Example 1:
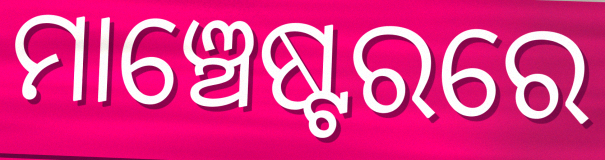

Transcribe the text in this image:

ମାଞ୍ଚେଷ୍ଟରରେ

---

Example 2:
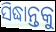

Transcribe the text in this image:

ସିଦ୍ଧାନ୍ତକୁ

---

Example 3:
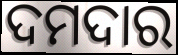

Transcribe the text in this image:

ଦମଦାର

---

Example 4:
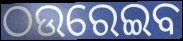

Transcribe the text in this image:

ଠଉରେଇବ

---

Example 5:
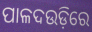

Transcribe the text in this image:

ପାଳଦଉଡ଼ିରେ